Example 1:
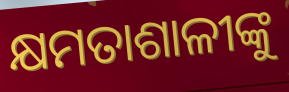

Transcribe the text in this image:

କ୍ଷମତାଶାଳୀଙ୍କୁ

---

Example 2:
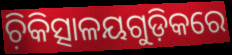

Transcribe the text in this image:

ଚ଼ିକିତ୍ସାଳୟଗୁଡ଼ିକରେ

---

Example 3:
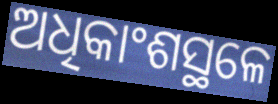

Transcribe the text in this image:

ଅଧିକାଂଶସ୍ଥଳେ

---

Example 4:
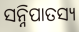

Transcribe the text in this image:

ସନ୍ନିପାତସ୍ୟ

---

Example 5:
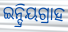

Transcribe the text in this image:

ଇନ୍ଦ୍ରିୟଗ୍ରାହ